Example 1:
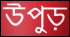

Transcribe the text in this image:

উপুড়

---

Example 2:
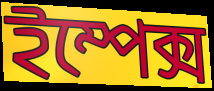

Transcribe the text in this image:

ইম্পেক্স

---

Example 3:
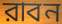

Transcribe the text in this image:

রাবন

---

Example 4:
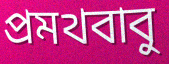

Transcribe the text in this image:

প্রমথবাবু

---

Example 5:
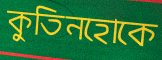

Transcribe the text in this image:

কুতিনহোকে